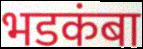
भडकंबा